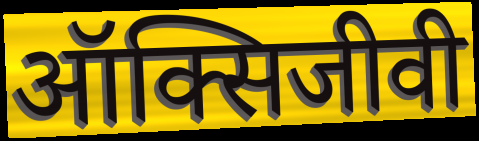
ऑक्सिजीवी